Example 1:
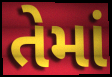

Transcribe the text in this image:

તેમાં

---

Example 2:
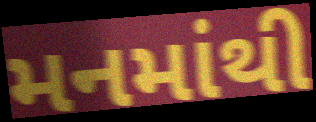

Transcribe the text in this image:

મનમાંથી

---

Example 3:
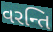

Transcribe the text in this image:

વરન્તિ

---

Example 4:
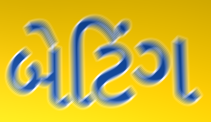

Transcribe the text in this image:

બેટિંગ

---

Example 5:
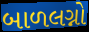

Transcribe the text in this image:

બાળલગ્નો